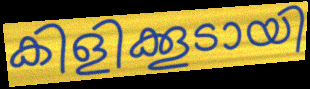
കിളിക്കൂടായി